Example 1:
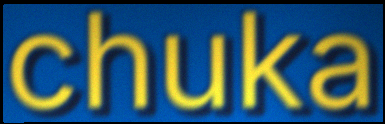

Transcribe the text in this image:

chuka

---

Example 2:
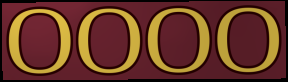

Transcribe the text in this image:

OOOO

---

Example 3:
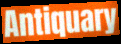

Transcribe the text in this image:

Antiquary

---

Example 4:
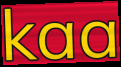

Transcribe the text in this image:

kaa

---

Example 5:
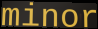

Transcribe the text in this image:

minor